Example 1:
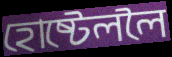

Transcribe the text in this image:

হোষ্টেললৈ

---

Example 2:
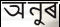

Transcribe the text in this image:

অনুৰ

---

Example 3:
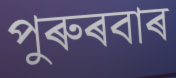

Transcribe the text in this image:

পুৰুৰবাৰ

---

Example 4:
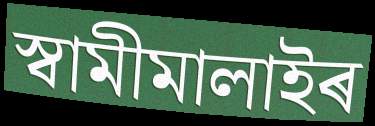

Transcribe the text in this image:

স্বামীমালাইৰ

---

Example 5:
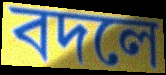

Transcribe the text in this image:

বদলে